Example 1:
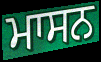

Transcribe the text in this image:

ਮਾਸਨ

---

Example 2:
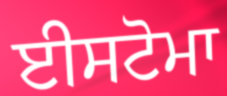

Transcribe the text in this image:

ਈਸਟੋਮਾ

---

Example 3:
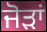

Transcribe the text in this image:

ਜੋਡ਼ਾਂ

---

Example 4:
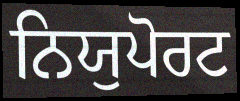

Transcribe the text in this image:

ਨਿਯੁਪੋਰਟ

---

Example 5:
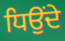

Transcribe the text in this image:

ਧਿਉਂਦੇ